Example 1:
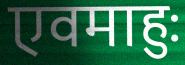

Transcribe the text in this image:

एवमाहुः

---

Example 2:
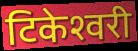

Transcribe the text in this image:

टिकेश्वरी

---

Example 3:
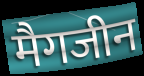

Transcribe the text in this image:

मैगजीन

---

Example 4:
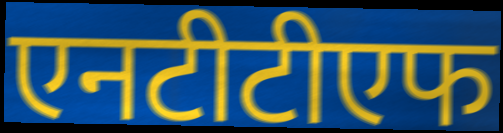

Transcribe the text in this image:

एनटीटीएफ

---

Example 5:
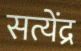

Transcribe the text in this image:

सत्येंद्र